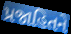
પ્રજાહિતને